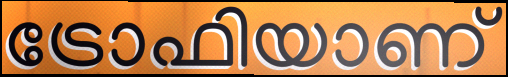
ട്രോഫിയാണ്